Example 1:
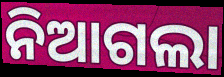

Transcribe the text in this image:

ନିଆଗଲା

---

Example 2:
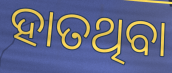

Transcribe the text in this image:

ହାତଥିବା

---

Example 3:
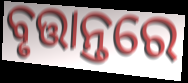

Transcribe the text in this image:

ବୃତ୍ତାନ୍ତରେ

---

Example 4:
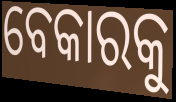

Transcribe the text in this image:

ବେକାରକୁ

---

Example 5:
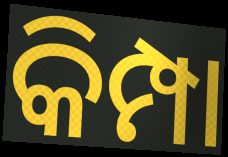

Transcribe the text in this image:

କିମ୍ପା